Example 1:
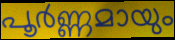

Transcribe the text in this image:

പൂർണ്ണമായും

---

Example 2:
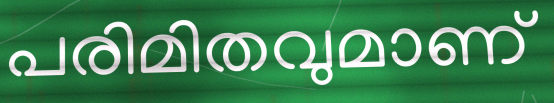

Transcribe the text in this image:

പരിമിതവുമാണ്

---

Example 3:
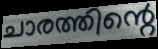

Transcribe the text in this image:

ചാരത്തിന്റെ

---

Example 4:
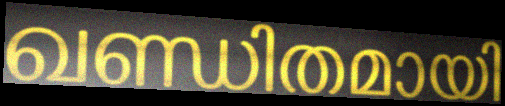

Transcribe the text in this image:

ഖണ്ഡിതമായി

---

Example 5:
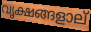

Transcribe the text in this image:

വൃക്ഷങ്ങളാല്